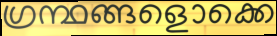
ഗ്രന്ഥങ്ങളൊക്കെ